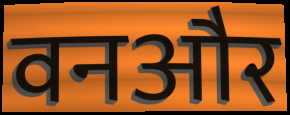
वनऔर